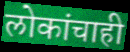
लोकांचाही